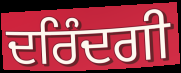
ਦਰਿੰਦਗੀ